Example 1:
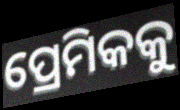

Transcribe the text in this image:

ପ୍ରେମିକକୁ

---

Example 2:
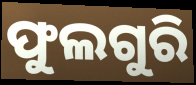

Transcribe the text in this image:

ଫୁଲଗୁରି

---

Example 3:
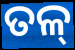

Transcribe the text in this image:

ତଳ୍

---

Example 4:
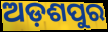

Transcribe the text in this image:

ଅଡ଼ଶପୁର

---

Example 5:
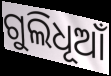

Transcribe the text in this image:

ଗୁଲିଧୂଆଁ